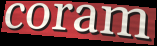
coram